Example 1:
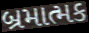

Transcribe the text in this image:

બ્રમાત્મક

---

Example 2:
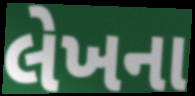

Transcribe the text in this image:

લેખના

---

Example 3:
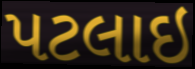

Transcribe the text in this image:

પટલાઇ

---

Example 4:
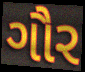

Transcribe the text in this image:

ગૌર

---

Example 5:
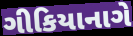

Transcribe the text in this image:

ગીકિયાનાગે